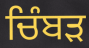
ਚਿੰਬੜ